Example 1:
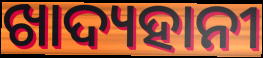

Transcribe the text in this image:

ଖାଦ୍ୟହାନୀ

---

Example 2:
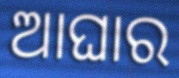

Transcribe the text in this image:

ଆଘାର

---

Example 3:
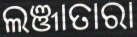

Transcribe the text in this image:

ଲଞ୍ଜାତାରା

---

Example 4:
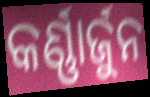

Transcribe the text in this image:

କର୍ଣ୍ଣାର୍ଜୁନ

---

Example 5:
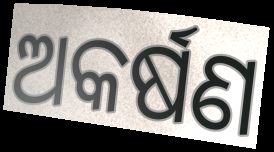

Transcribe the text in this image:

ଅକର୍ଷଣ